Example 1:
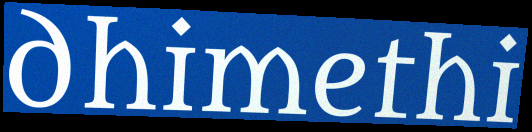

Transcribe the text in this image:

dhimethi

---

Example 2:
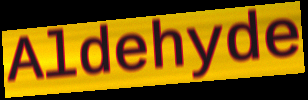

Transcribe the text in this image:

Aldehyde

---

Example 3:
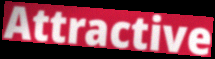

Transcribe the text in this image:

Attractive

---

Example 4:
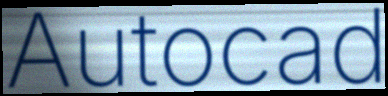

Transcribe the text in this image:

Autocad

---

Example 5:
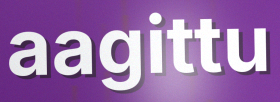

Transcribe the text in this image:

aagittu